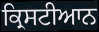
ਕ੍ਰਿਸਟੀਆਨ